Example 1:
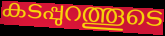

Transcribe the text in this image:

കടപ്പുറത്തൂടെ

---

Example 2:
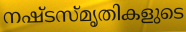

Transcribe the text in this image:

നഷ്ടസ്മൃതികളുടെ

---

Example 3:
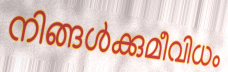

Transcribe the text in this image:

നിങ്ങൾക്കുമീവിധം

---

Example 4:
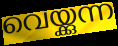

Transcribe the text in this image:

വെയ്ക്കുന്ന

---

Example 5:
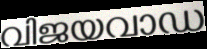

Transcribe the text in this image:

വിജയവാഡ